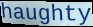
haughty